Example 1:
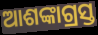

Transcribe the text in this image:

ଆଶଙ୍କାଗ୍ରସ୍ତ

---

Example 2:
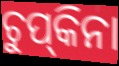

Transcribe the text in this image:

ଚୁପ୍‌କିନା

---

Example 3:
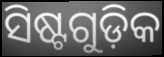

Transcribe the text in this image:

ସିଷ୍ଟଗୁଡ଼ିକ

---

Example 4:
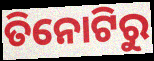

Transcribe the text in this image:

ତିନୋଟିରୁ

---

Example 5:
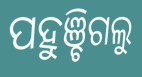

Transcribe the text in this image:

ପହୁଞ୍ଚିଗଲୁ